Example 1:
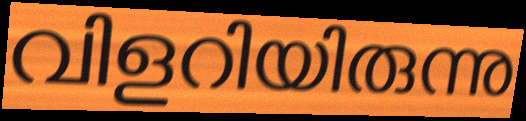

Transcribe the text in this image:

വിളറിയിരുന്നു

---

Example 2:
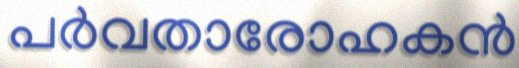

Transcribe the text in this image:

പർവതാരോഹകൻ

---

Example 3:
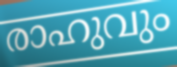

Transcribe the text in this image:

രാഹുവും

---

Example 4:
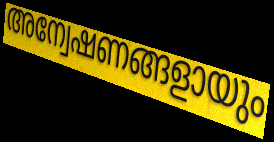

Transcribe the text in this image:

അന്വേഷണങ്ങളായും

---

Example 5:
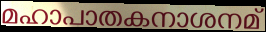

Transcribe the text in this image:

മഹാപാതകനാശനമ്